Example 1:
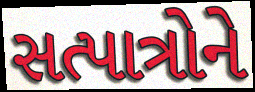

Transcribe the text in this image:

સત્પાત્રોને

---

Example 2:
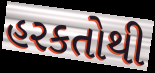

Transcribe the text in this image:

હરકતોથી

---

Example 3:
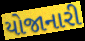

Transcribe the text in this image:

યોજાનારી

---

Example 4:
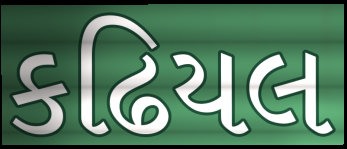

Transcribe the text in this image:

કઢિયલ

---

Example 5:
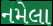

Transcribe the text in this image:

નમેલા